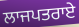
ਲਾਜਪਤਰਾਏ